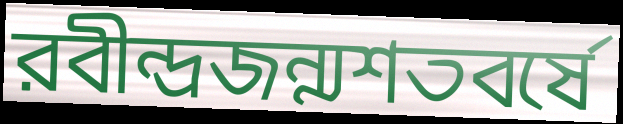
রবীন্দ্রজন্মশতবর্ষে